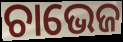
ଚାଭେଜ